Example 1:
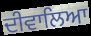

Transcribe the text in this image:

ਦੀਵਾਲਿਆ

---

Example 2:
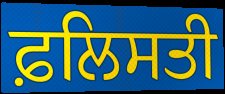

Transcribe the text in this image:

ਫ਼ਲਿਸਤੀ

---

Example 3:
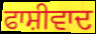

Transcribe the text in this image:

ਫਾਸ਼ੀਵਾਦ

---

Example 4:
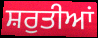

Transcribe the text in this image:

ਸ਼ਰੁਤੀਆਂ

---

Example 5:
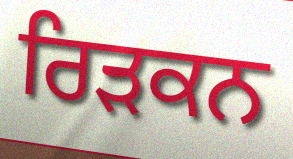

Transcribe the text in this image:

ਰਿੜਕਨ